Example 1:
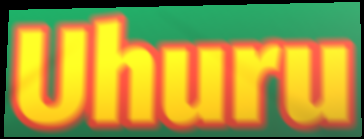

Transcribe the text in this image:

Uhuru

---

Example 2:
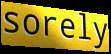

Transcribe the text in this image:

sorely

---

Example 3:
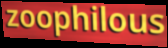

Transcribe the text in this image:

zoophilous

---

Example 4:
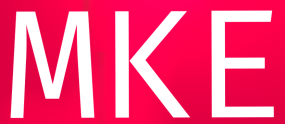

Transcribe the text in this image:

MKE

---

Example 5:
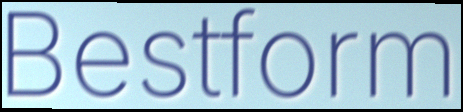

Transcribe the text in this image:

Bestform